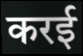
करई